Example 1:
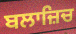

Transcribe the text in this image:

ਬਲਾਜ਼ਿਚ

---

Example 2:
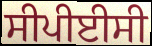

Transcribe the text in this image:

ਸੀਪੀਈਸੀ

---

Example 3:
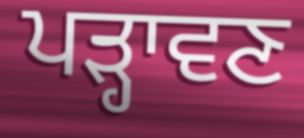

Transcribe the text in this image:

ਪੜ੍ਹਾਵਣ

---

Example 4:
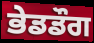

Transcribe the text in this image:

ਭੇਡਡੌਗ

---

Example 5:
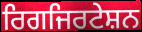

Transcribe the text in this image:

ਰਿਗਜਿਰਟੇਸ਼ਨ